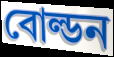
বোল্ডন